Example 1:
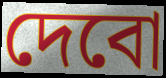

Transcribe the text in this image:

দেবো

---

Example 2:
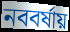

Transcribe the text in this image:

নববর্ষায়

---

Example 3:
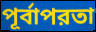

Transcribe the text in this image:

পূর্বাপরতা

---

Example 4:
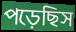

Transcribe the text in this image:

পড়েছিস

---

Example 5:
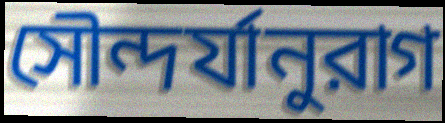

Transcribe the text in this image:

সৌন্দর্যানুরাগ